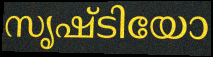
സൃഷ്ടിയോ